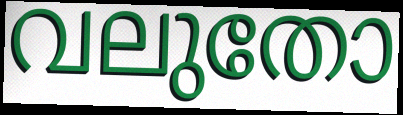
വലുതോ